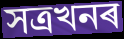
সত্ৰখনৰ